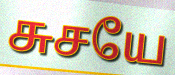
சுசயே